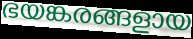
ഭയങ്കരങ്ങളായ